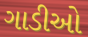
ગાડીઓ